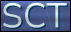
SCT